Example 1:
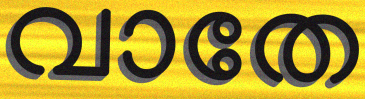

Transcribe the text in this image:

വാതേ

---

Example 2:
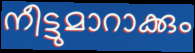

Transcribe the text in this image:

നീട്ടുമാറാക്കും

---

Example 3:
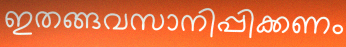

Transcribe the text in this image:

ഇതങ്ങവസാനിപ്പിക്കണം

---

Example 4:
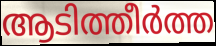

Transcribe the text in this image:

ആടിത്തീർത്ത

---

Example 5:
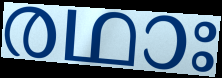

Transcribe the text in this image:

രഥാഃ